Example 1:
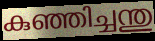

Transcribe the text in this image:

കുഞ്ഞിച്ചന്തു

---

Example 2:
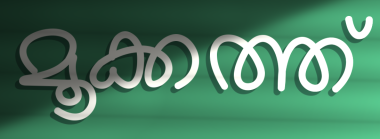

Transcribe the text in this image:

മൂക്കത്ത്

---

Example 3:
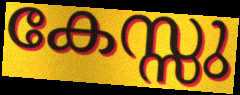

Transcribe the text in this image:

കേസ്സു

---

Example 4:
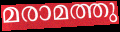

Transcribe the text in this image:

മരാമത്തു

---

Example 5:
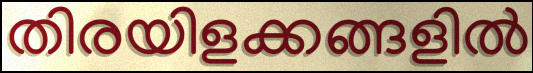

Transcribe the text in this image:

തിരയിളക്കങ്ങളിൽ